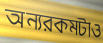
অন্যরকমটাও